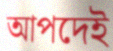
আপদেই